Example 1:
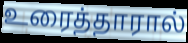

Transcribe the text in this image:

உரைத்தாரால்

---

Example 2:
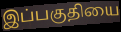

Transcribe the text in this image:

இப்பகுதியை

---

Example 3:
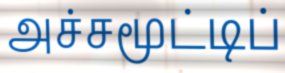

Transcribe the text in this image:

அச்சமூட்டிப்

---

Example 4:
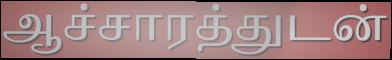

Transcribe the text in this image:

ஆச்சாரத்துடன்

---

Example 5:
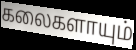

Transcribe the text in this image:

கலைகளாயும்